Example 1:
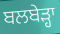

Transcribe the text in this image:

ਬਲਬੇੜ੍ਹਾ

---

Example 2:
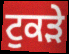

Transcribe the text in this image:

ਟੁਕੜੇ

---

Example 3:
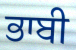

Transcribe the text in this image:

ਭਾਬੀ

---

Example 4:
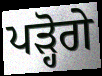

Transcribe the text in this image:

ਪੜ੍ਹੋਗੇ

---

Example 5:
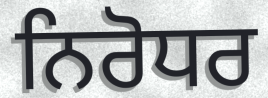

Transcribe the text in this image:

ਨਿਰੋਧਰ